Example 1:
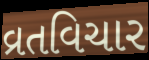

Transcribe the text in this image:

વ્રતવિચાર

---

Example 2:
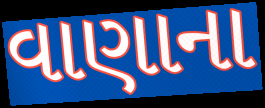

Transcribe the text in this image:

વાણાના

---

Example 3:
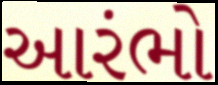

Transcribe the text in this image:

આરંભો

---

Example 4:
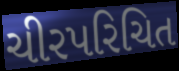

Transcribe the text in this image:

ચીરપરિચિત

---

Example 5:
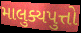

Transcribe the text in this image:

માલુક્યપુત્તો